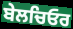
ਬੇਲਚਿਓਰ